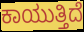
ಕಾಯುತ್ತಿದೆ